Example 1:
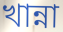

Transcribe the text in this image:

খান্না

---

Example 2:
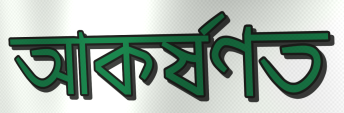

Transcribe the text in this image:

আকৰ্ষণত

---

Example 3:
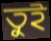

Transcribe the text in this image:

তুই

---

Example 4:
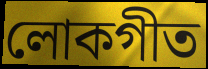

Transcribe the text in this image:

লোকগীত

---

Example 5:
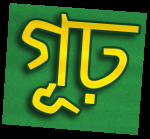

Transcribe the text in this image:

গূঢ়